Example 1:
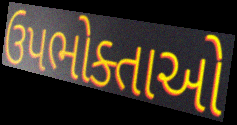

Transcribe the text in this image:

ઉપભોક્તાઓ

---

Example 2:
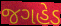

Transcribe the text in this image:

જગહેડ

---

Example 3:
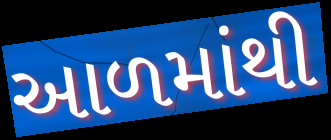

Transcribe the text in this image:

આળમાંથી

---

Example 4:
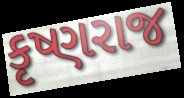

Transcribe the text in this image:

કૃષ્ણરાજ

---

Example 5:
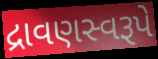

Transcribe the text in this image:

દ્રાવણસ્વરૂપે